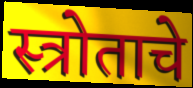
स्त्रोताचे